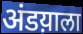
अंडय़ाला